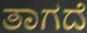
ತಾಗದೆ